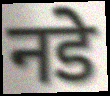
नडे